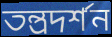
তন্ত্রদর্শন